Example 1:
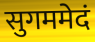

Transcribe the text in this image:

सुगममेदं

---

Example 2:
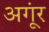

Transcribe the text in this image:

अगूंर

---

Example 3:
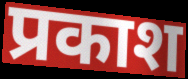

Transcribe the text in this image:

प्रकाश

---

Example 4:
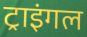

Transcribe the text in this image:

ट्राइंगल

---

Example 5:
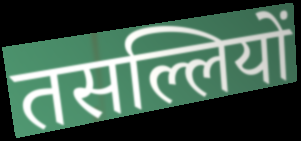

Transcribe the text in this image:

तसल्लियों